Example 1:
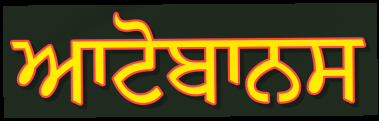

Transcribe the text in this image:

ਆਟੋਬਾਨਸ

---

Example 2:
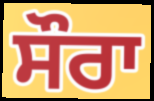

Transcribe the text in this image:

ਸੌਰਾ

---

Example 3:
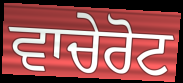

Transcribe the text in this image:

ਵਾਚੇਰੋਟ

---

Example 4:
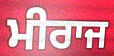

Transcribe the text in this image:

ਮੀਰਾਜ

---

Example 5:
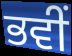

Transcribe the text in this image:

ਭਵੀਂ